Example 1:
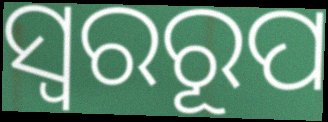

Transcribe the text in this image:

ସ୍ୱରରୂପ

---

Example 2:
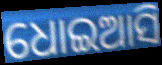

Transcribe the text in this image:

ଧୋଇଆସି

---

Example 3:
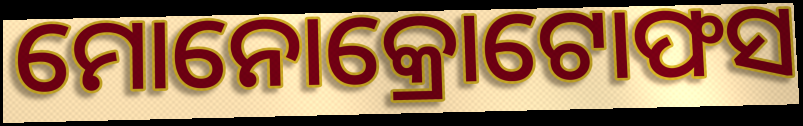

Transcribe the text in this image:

ମୋନୋକ୍ରୋଟୋଫସ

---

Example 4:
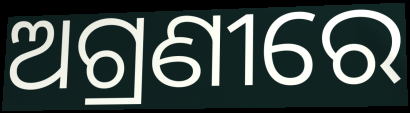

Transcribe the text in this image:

ଅଗ୍ରଣୀରେ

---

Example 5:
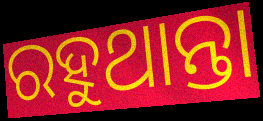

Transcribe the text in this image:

ରହୁଥାନ୍ତା